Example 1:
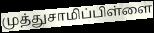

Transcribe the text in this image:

முத்துசாமிப்பிள்ளை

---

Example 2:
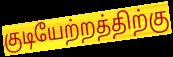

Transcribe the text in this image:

குடியேற்றத்திற்கு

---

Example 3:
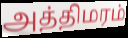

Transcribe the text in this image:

அத்திமரம்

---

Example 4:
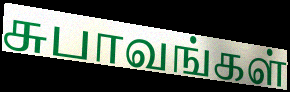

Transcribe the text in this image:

சுபாவங்கள்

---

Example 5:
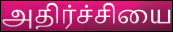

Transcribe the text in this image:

அதிர்ச்சியை